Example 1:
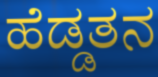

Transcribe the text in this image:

ಹೆಡ್ಡತನ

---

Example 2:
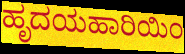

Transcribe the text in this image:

ಹೃದಯಹಾರಿಯಿಂ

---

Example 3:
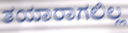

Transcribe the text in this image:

ತಯಾರಾಗಲಿಲ್ಲ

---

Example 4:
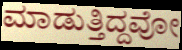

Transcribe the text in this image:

ಮಾಡುತ್ತಿದ್ದವೋ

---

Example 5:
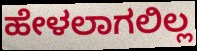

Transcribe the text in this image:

ಹೇಳಲಾಗಲಿಲ್ಲ